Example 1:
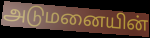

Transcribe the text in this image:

அடுமனையின்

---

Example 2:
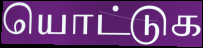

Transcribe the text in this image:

யொட்டுக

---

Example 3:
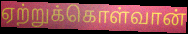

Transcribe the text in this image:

ஏற்றுக்கொள்வான்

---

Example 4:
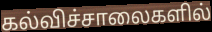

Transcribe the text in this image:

கல்விச்சாலைகளில்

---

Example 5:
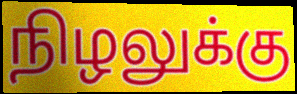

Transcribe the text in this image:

நிழலுக்கு